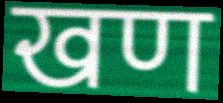
खण